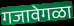
गजावेगळा